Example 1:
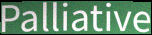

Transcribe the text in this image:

Palliative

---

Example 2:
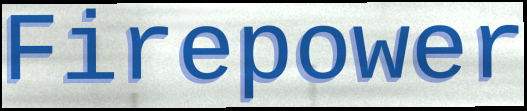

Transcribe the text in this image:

Firepower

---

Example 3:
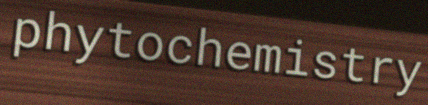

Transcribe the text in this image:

phytochemistry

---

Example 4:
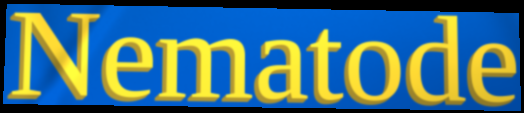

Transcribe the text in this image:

Nematode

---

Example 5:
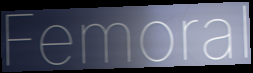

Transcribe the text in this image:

Femoral